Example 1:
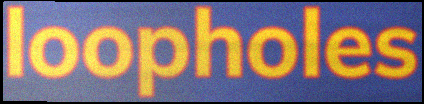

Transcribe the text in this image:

loopholes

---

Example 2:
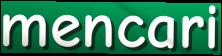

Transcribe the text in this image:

mencari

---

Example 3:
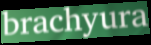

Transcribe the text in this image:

brachyura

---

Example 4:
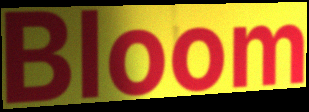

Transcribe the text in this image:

Bloom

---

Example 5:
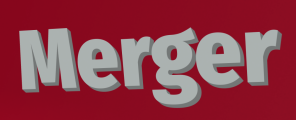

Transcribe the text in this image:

Merger